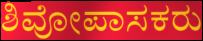
ಶಿವೋಪಾಸಕರು